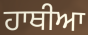
ਹਾਥੀਆ